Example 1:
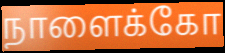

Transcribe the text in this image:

நாளைக்கோ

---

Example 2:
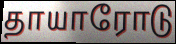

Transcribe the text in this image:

தாயாரோடு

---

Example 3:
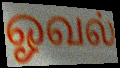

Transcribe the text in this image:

ஓவல்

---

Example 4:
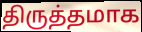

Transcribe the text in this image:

திருத்தமாக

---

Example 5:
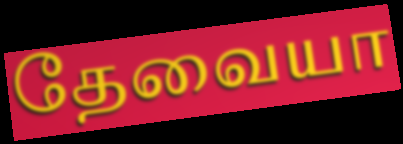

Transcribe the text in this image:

தேவையா